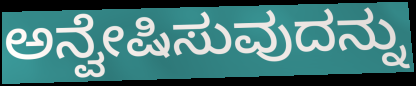
ಅನ್ವೇಷಿಸುವುದನ್ನು